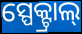
ସ୍ପେକ୍ଟ୍ରାଲ୍